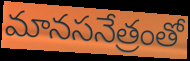
మానసనేత్రంతో